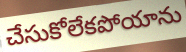
చేసుకోలేకపోయాను